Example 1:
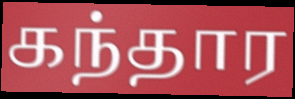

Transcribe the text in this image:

கந்தார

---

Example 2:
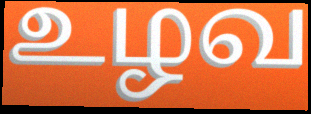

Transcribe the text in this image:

உழவ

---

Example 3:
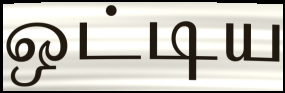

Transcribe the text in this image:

ஒட்டிய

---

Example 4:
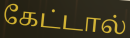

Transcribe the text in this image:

கேட்டால்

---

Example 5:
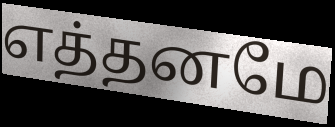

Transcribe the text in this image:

எத்தனமே